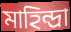
মাহিন্দ্রা